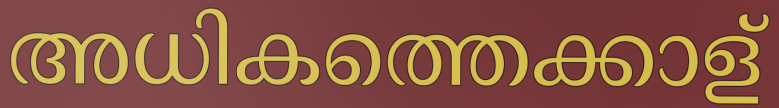
അധികത്തെക്കാള്